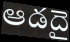
ఆడదై